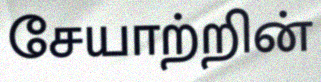
சேயாற்றின்